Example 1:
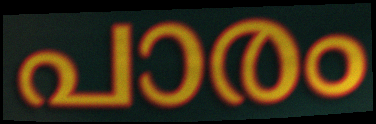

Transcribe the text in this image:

പാരം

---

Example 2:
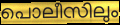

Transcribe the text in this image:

പൊലീസിലും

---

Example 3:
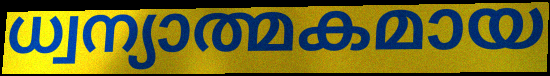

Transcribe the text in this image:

ധ്വന്യാത്മകമായ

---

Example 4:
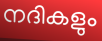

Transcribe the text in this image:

നദികളും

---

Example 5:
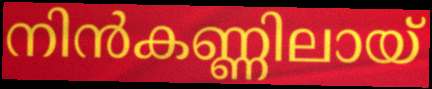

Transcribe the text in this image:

നിൻകണ്ണിലായ്